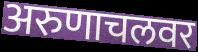
अरुणाचलवर